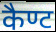
कैण्ट